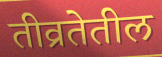
तीव्रतेतील